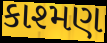
કાશ્મણ